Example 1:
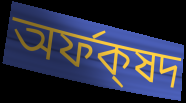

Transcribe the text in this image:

অর্ফক্‌ষদ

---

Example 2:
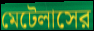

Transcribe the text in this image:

মেটেলাসের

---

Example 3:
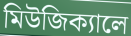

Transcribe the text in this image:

মিউজিক্যালে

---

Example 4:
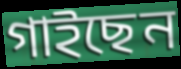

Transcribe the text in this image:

গাইছেন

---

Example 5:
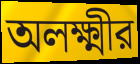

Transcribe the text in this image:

অলক্ষ্মীর